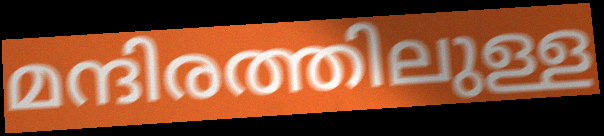
മന്ദിരത്തിലുള്ള